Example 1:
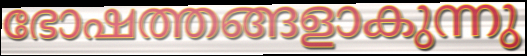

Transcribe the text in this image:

ഭോഷത്തങ്ങളാകുന്നു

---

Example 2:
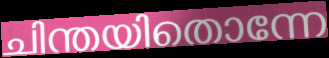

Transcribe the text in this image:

ചിന്തയിതൊന്നേ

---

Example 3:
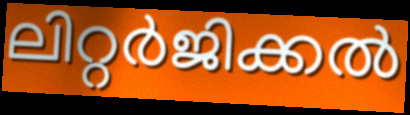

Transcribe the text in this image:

ലിറ്റർജിക്കൽ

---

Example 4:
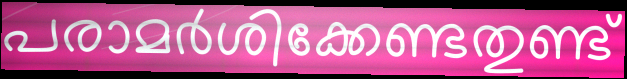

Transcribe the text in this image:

പരാമർശിക്കേണ്ടതുണ്ട്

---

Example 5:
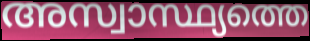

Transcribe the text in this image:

അസ്വാസ്ഥ്യത്തെ